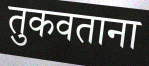
तुकवताना